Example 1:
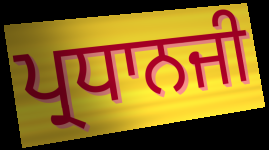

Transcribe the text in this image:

ਪ੍ਰਧਾਨਜੀ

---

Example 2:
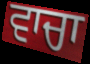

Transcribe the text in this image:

ਵਾਚਾ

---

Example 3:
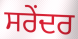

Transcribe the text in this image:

ਸਰੇਂਦਰ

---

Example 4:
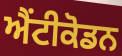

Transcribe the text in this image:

ਐਂਟੀਕੋਡਨ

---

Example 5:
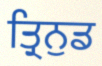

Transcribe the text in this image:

ਤ੍ਰਿਨੁਡ